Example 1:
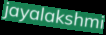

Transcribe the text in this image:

jayalakshmi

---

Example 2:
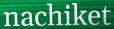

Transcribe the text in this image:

nachiket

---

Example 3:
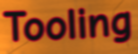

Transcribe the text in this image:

Tooling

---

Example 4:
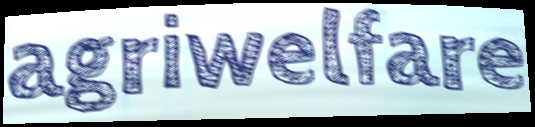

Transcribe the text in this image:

agriwelfare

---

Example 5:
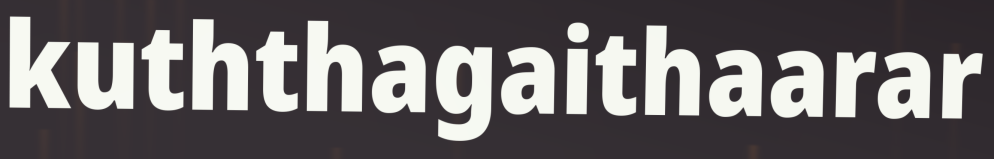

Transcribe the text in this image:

kuththagaithaarar